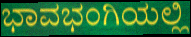
ಭಾವಭಂಗಿಯಲ್ಲಿ